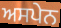
ਅਸਪੇਨ